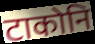
टाकोनि